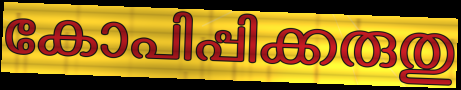
കോപിപ്പിക്കരുതു